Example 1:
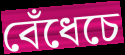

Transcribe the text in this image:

বেঁধেচে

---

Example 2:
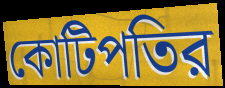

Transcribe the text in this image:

কোটিপতির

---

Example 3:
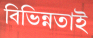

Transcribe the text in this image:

বিভিন্নতাই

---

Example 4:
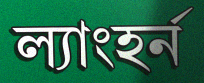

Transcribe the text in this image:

ল্যাংহর্ন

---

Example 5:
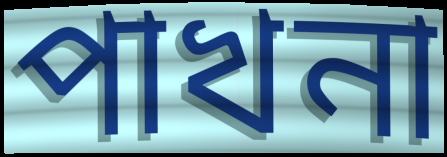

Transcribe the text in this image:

পাখনা